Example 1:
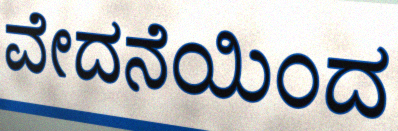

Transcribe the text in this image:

ವೇದನೆಯಿಂದ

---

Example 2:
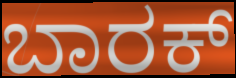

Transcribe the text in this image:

ಬಾರಕ್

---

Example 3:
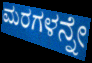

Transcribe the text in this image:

ಮರಗಳನ್ನೇ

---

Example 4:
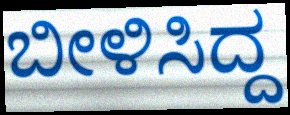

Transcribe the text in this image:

ಬೀಳಿಸಿದ್ದ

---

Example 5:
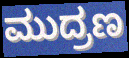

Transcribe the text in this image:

ಮುದ್ರಣ